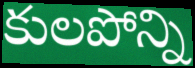
కులపోన్ని